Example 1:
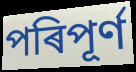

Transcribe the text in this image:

পৰিপূৰ্ণ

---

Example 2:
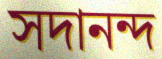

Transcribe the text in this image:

সদানন্দ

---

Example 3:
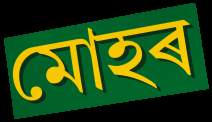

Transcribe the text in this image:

মোহৰ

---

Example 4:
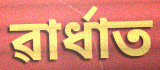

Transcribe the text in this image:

ৱাৰ্ধাত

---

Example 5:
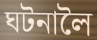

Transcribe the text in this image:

ঘটনালৈ